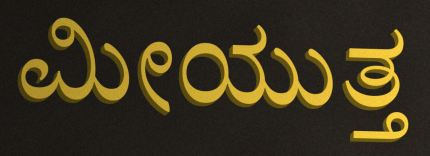
ಮೀಯುತ್ತ